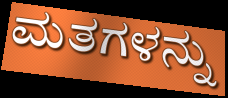
ಮತಗಳನ್ನು